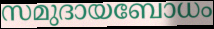
സമുദായബോധം